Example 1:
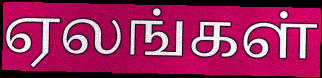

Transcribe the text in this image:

ஏலங்கள்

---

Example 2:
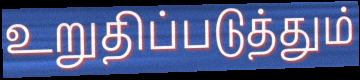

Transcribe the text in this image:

உறுதிப்படுத்தும்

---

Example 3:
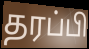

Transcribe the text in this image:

தரப்பி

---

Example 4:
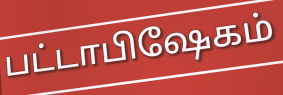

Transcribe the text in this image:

பட்டாபிஷேகம்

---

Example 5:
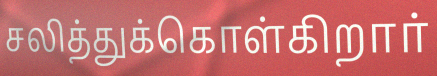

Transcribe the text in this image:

சலித்துக்கொள்கிறார்